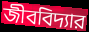
জীববিদ্যার